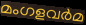
മംഗളവർമ